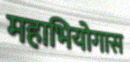
महाभियोगास